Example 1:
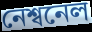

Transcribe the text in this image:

নেশ্বনেল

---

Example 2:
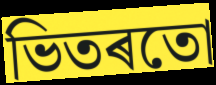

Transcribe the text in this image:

ভিতৰতো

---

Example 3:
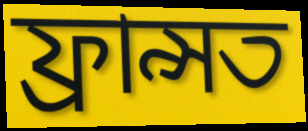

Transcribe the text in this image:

ফ্ৰান্সত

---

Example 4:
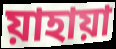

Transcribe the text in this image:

য়াহায়া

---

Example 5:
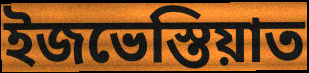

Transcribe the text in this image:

ইজভেস্তিয়াত